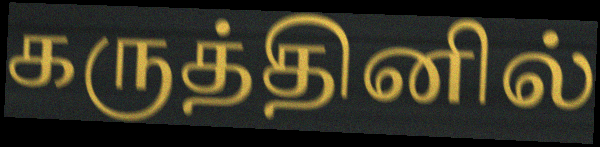
கருத்தினில்